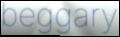
beggary